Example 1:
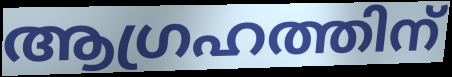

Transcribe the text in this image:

ആഗ്രഹത്തിന്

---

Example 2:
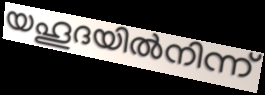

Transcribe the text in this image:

യഹൂദയിൽനിന്ന്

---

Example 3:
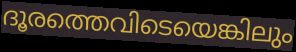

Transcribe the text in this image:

ദൂരത്തെവിടെയെങ്കിലും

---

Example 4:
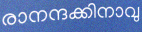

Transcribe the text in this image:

രാനന്ദക്കിനാവു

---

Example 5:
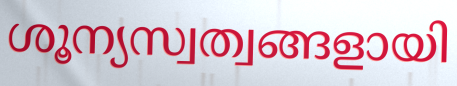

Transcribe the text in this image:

ശൂന്യസ്വത്വങ്ങളായി